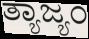
ತ್ಯಾಜ್ಯಂ